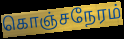
கொஞ்சநேரம்